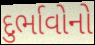
દુર્ભાવોનો